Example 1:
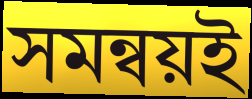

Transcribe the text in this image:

সমন্বয়ই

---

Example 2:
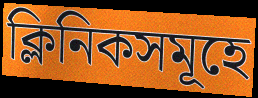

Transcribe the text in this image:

ক্লিনিকসমূহে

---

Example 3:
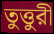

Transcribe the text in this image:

তুত্তুরী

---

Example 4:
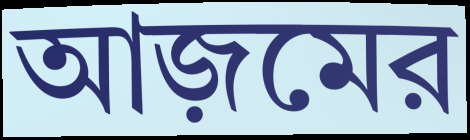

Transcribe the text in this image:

আজ়মের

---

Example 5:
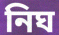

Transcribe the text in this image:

নিঘ